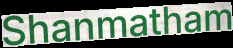
Shanmatham